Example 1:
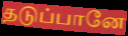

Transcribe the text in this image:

தடுப்பானே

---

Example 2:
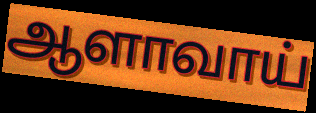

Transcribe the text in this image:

ஆளாவாய்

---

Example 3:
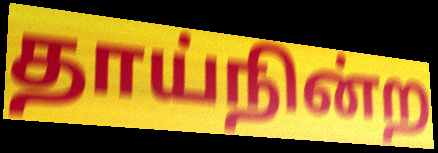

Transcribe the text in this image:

தாய்நின்ற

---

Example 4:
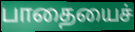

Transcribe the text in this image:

பாதையைச்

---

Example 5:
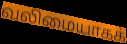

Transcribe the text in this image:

வலிமையாகக்